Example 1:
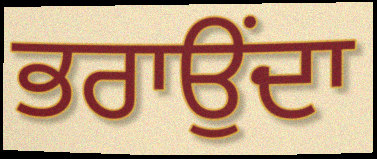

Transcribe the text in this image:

ਭਰਾਉਂਦਾ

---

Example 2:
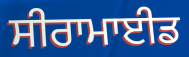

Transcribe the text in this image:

ਸੀਰਾਮਾਈਡ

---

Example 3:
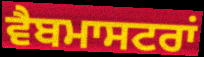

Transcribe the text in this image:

ਵੈਬਮਾਸਟਰਾਂ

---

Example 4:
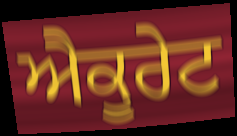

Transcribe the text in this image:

ਐਕੂਰੇਟ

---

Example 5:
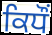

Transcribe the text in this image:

ਕਿਧੌਂ